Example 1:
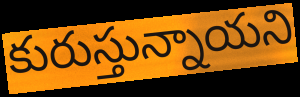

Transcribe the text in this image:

కురుస్తున్నాయని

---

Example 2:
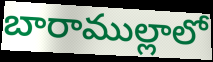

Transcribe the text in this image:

బారాముల్లాలో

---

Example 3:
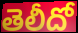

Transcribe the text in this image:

తెలీదో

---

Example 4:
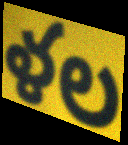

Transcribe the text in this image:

ళల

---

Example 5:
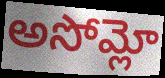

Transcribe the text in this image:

అసోమ్లో